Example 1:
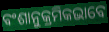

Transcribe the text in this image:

ବଂଶାନୁକ୍ରମିକଭାବେ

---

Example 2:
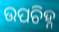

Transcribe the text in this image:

ଉପଚିହ୍ନ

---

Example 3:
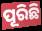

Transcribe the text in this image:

ପୂରିଛି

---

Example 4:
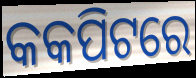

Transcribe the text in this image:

କକପିଟରେ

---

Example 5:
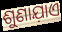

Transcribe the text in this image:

ଶୁଣାଯ଼ାଏ